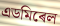
এডমিৰেল